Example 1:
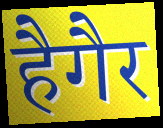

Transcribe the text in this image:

हैगैर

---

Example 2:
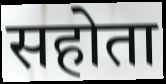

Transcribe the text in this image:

सहोता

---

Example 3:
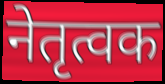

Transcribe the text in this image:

नेतृत्वक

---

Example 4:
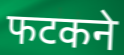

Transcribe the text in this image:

फटकने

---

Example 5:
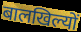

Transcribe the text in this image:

बालखिल्यों